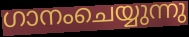
ഗാനംചെയ്യുന്നു